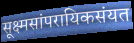
सूक्ष्मसांपरायिकसंयत